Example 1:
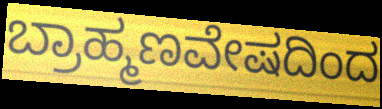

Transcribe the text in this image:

ಬ್ರಾಹ್ಮಣವೇಷದಿಂದ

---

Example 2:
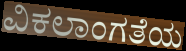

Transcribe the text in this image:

ವಿಕಲಾಂಗತೆಯ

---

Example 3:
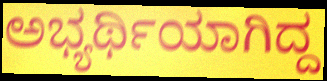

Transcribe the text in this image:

ಅಭ್ಯರ್ಥಿಯಾಗಿದ್ದ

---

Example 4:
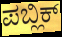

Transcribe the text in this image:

ಪಬ್ಲಿಕ್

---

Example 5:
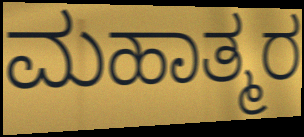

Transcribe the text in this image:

ಮಹಾತ್ಮರ